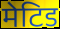
मेटिड